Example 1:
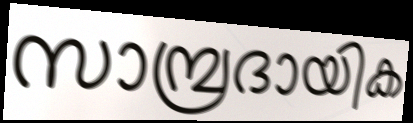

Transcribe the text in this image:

സാമ്പ്രദായിക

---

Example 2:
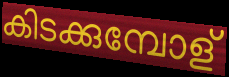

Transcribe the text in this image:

കിടക്കുമ്പോള്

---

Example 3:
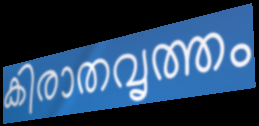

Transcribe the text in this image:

കിരാതവൃത്തം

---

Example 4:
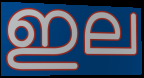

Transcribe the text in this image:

ഇല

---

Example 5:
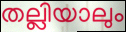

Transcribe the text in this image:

തല്ലിയാലും